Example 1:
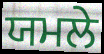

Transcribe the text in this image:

ਯਮਲੇ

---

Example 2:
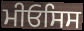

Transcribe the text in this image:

ਮੀਓਸਿਸ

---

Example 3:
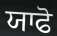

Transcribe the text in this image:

ਯਾਫੋ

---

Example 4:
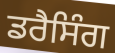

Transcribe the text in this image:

ਡਰੈਸਿੰਗ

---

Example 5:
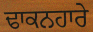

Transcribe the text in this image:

ਢਾਕਨਹਾਰੇ